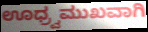
ಊಧ್ರ್ವಮುಖವಾಗಿ